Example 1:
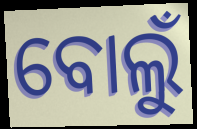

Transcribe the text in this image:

ବୋଲୁଁ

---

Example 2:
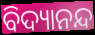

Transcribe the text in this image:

ବିଦ୍ୟାନନ୍ଦ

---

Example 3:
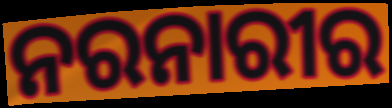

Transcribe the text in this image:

ନରନାରୀର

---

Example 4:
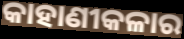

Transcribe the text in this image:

କାହାଣୀକଳାର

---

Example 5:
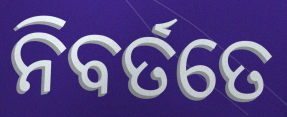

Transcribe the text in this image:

ନିବର୍ତତେ